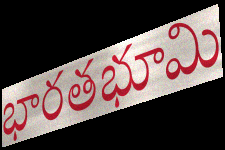
భారతభూమి